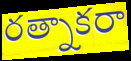
రత్నాకరా